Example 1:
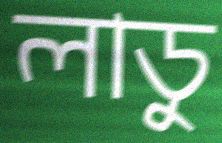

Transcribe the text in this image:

লাডু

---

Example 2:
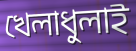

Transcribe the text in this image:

খেলাধুলাই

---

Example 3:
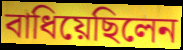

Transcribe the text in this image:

বাধিয়েছিলেন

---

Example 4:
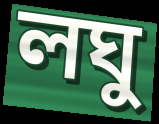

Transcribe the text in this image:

লঘু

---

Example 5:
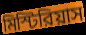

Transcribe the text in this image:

মিস্টিরিয়াস